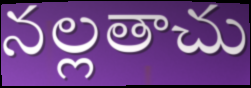
నల్లతాచు